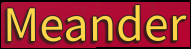
Meander